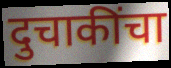
दुचाकींचा